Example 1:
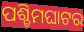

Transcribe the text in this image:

ପଶ୍ଚିମଘାଟର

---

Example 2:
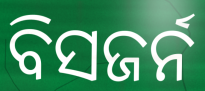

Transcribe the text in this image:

ବିସଜର୍ନ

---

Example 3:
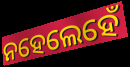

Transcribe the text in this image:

ନହେଲେହେଁ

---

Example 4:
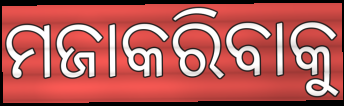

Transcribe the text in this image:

ମଜାକରିବାକୁ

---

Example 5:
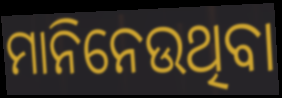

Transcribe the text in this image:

ମାନିନେଉଥିବା